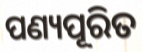
ପଣ୍ୟପୂରିତ